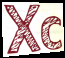
Xc